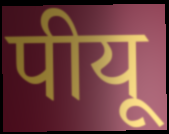
पीयू